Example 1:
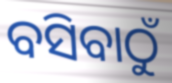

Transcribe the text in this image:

ବସିବାଠୁଁ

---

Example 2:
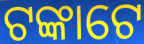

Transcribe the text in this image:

ଟଙ୍କାଟେ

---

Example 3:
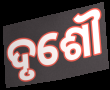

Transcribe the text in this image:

ଦୃଶୌ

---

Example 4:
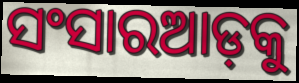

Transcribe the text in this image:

ସଂସାରଆଡ଼କୁ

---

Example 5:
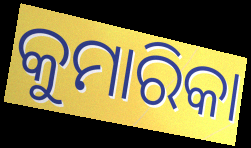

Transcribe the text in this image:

କୁମାରିକା